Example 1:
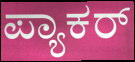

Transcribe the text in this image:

ಪ್ಯಾಕರ್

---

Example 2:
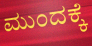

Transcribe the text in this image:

ಮುಂದಕ್ಕೆ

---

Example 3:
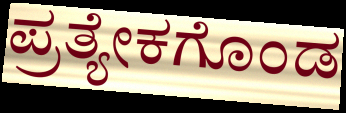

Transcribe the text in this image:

ಪ್ರತ್ಯೇಕಗೊಂಡ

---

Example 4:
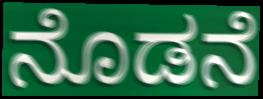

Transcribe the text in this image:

ನೊಡನೆ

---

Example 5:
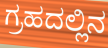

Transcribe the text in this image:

ಗ್ರಹದಲ್ಲಿನ